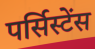
पर्सिस्टेंस